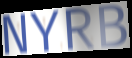
NYRB